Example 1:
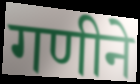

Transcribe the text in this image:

गणीने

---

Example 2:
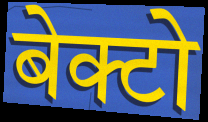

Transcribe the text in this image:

बेक्टो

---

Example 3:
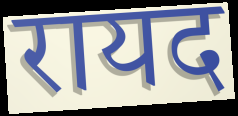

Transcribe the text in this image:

रायद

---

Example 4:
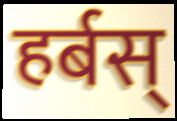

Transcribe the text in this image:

हर्बस्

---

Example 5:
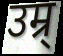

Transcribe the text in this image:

उम्र्